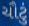
ચૌટું